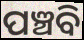
ପଞ୍ଚବି